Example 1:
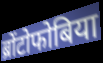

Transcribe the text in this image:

ब्रोंटोफोबिया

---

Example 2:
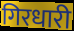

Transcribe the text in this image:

गिरधारी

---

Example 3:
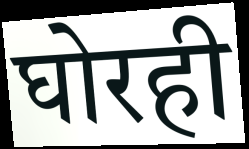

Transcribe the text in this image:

घोरही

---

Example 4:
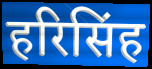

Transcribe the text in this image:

हरिसिंह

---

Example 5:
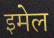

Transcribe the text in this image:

इमेल